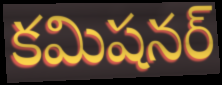
కమిషనర్